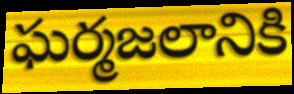
ఘర్మజలానికి